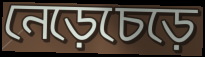
নেড়েচেড়ে